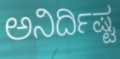
ಅನಿರ್ದಿಷ್ಟ